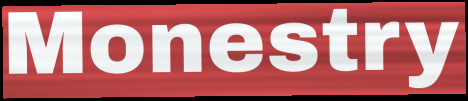
Monestry